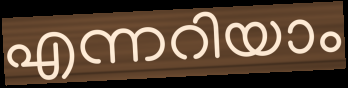
എന്നറിയാം